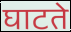
घाटते